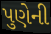
પુણેની